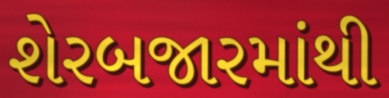
શેરબજારમાંથી